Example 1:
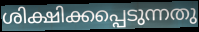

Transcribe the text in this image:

ശിക്ഷിക്കപ്പെടുന്നതു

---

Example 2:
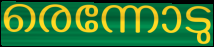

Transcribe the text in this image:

രെന്നോടു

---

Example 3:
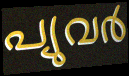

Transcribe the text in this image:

പ്യുവർ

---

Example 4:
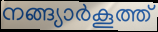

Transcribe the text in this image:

നങ്ങ്യാർകൂത്ത്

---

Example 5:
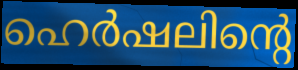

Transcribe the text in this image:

ഹെർഷലിന്റെ